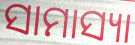
ସାମାସ୍ୟା